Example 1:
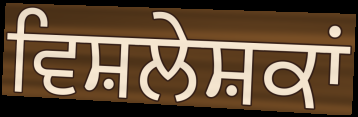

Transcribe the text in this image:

ਵਿਸ਼ਲੇਸ਼ਕਾਂ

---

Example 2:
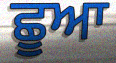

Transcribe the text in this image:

ਛੂਆ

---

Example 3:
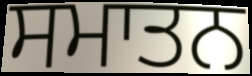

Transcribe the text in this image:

ਸਮਾਤਨ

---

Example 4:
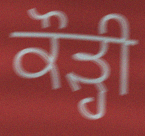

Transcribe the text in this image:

ਕੌੜ੍ਹੀ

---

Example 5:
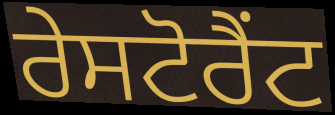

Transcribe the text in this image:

ਰੇਸਟੋਰੈਂਟ